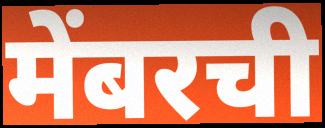
मेंबरची